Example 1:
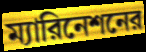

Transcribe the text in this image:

ম্যারিনেশনের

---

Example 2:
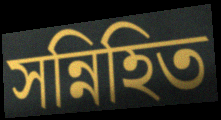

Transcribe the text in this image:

সন্নিহিত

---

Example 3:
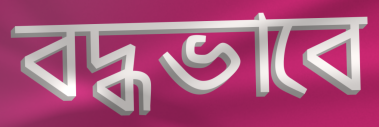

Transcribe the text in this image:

বদ্ধভাবে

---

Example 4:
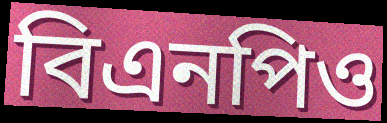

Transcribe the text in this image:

বিএনপিও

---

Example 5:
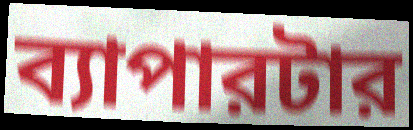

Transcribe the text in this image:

ব্যাপারটার